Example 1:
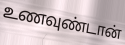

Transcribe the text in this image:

உணவுண்டான்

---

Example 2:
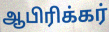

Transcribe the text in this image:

ஆபிரிக்கர்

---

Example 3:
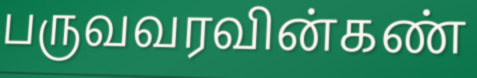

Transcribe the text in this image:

பருவவரவின்கண்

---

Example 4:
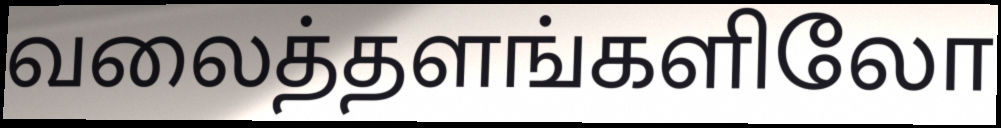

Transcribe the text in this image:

வலைத்தளங்களிலோ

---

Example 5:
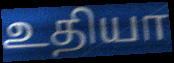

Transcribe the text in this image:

உதியா